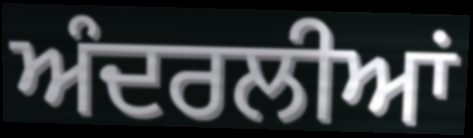
ਅੰਦਰਲੀਆਂ